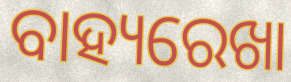
ବାହ୍ୟରେଖା